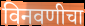
विनवणीचा